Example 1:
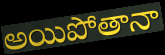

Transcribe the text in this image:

అయిపోతానా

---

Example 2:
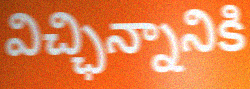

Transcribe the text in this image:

విచ్ఛిన్నానికి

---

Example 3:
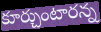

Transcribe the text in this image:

కూర్చుంటారన్న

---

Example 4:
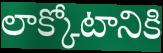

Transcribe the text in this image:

లాక్కోటానికి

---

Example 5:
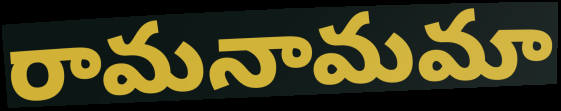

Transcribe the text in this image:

రామనామమా